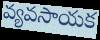
వ్యవసాయక